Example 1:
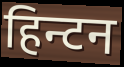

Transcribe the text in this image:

हिन्टन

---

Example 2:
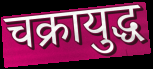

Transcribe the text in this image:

चक्रायुद्ध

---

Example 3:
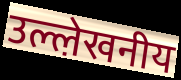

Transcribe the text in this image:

उल्ल़ेखनीय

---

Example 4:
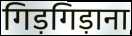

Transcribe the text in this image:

गिड़गिड़ाना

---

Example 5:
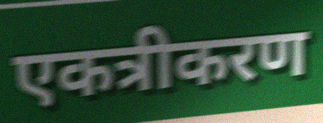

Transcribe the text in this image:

एकत्रीकरण